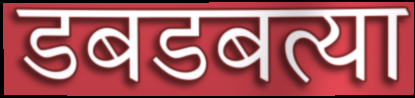
डबडबत्या